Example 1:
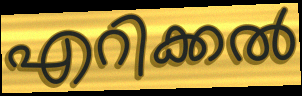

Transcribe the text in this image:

എറിക്കൽ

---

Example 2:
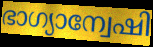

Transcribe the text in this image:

ഭാഗ്യാന്വേഷി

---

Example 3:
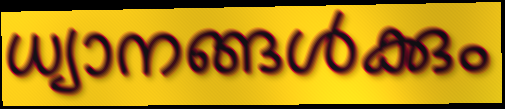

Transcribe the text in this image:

ധ്യാനങ്ങൾക്കും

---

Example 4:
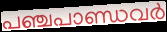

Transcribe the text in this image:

പഞ്ചപാണ്ഡവർ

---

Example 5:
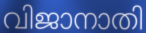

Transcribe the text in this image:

വിജാനാതി